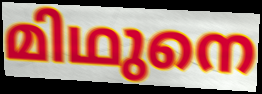
മിഥുനെ